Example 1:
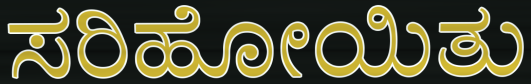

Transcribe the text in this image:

ಸರಿಹೋಯಿತು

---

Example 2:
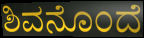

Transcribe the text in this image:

ಶಿವನೊಂದೆ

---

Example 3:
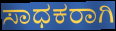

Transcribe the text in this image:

ಸಾಧಕರಾಗಿ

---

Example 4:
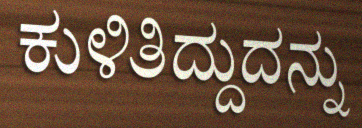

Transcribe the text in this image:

ಕುಳಿತಿದ್ದುದನ್ನು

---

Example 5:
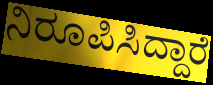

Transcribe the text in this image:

ನಿರೂಪಿಸಿದ್ದಾರೆ